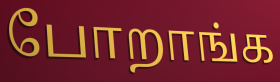
போறாங்க